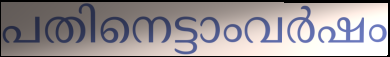
പതിനെട്ടാംവർഷം